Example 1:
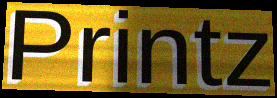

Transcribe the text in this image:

Printz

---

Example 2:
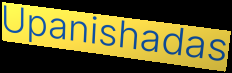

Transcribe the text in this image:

Upanishadas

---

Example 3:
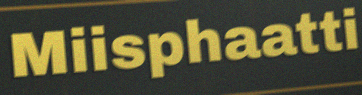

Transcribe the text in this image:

Miisphaatti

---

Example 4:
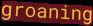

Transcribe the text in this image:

groaning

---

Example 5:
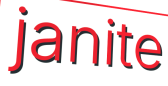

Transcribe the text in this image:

janite